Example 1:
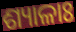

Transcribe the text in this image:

ଶ୍ୟାଳାଃ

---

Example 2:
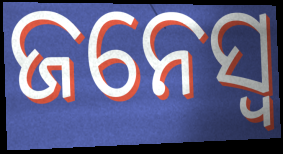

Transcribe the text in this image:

ଜନେସ୍ୱ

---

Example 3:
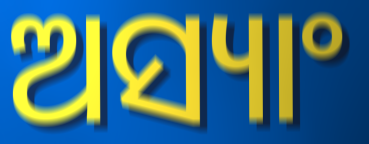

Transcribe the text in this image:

ଅସ୍ୟାଂ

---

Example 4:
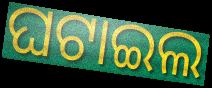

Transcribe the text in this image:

ଘଟାଇଲ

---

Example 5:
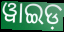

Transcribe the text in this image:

ୱାଇଡ଼